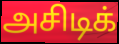
அசிடிக்